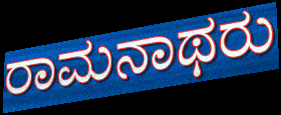
ರಾಮನಾಥರು